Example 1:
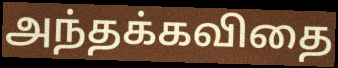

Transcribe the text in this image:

அந்தக்கவிதை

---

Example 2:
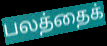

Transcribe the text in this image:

பலத்தைக்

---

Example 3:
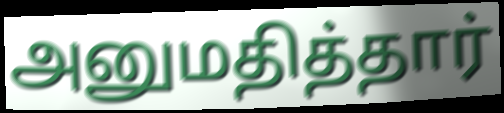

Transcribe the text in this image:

அனுமதித்தார்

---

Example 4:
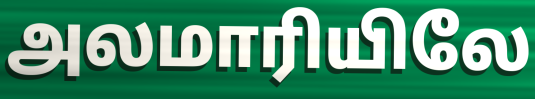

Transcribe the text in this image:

அலமாரியிலே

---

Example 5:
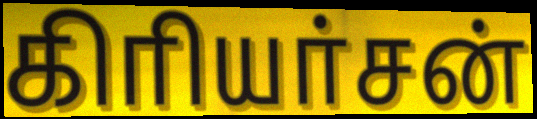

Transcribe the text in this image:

கிரியர்சன்